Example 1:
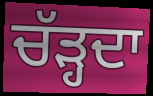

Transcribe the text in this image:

ਚੱੜ੍ਹਦਾ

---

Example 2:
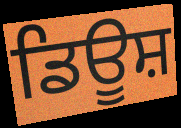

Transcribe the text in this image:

ਡਿਊਸ਼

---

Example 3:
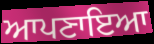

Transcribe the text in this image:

ਆਪਣਾਇਆ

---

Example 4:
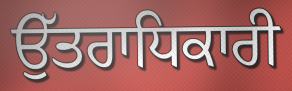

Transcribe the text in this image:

ਉੱਤਰਾਧਿਕਾਰੀ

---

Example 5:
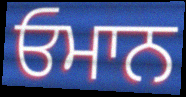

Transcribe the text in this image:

ਓਮਾਨ